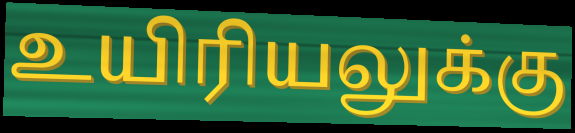
உயிரியலுக்கு